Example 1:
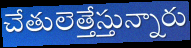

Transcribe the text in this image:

చేతులెత్తేస్తున్నారు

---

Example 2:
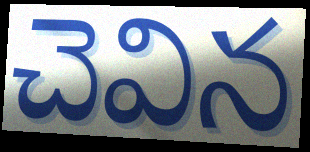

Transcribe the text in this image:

చెవిన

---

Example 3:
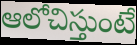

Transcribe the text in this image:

ఆలోచిస్తుంటే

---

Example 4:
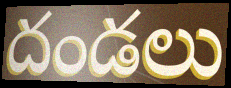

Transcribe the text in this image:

దండలు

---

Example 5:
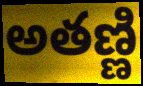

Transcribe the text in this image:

అతణ్ణి